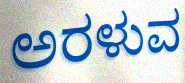
ಅರಳುವ